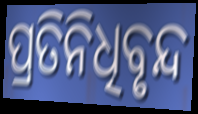
ପ୍ରତିନିଧିବୃନ୍ଦ